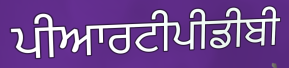
ਪੀਆਰਟੀਪੀਡੀਬੀ